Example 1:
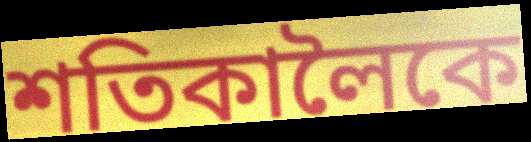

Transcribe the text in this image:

শতিকালৈকে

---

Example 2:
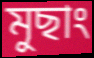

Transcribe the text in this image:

মুছাং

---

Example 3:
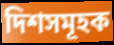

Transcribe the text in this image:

দিশসমূহক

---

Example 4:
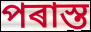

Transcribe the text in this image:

পৰাস্ত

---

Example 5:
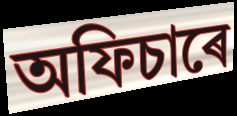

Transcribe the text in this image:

অফিচাৰে